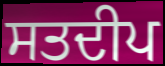
ਸਤਦੀਪ